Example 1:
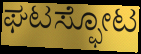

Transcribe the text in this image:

ಘಟಸ್ಫೋಟ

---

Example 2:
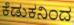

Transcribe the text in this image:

ಕೆಡುಕನಿಂದ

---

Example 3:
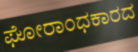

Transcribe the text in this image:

ಘೋರಾಂಧಕಾರದ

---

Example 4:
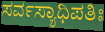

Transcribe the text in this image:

ಸರ್ವಸ್ಯಾಧಿಪತಿಃ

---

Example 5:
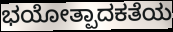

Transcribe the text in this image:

ಭಯೋತ್ಪಾದಕತೆಯ